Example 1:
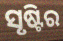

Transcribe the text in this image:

ସୃଷ୍ଟିର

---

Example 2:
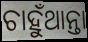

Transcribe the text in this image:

ଚାହୁଁଥାନ୍ତା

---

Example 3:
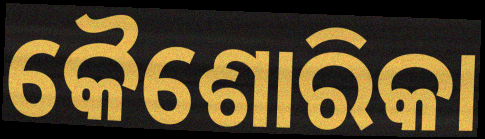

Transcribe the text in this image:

କୈଶୋରିକା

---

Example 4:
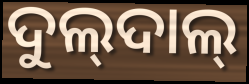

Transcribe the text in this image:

ଦୁଲ୍‍ଦାଲ୍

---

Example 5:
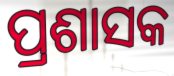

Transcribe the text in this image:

ପ୍ରଶାସକ